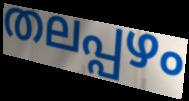
തലപ്പഴം